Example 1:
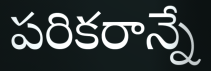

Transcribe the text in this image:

పరికరాన్నే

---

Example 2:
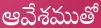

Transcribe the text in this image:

ఆవేశముతో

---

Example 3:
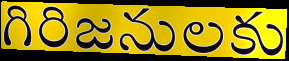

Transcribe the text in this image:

గిరిజనులకు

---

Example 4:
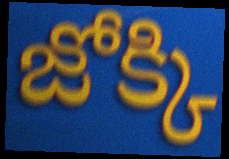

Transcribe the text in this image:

జోక్కి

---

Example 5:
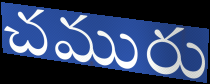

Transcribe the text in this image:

చమురు